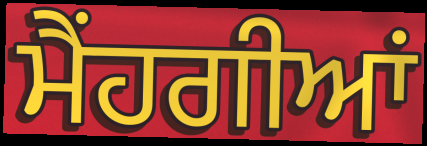
ਮੈਂਹਗੀਆਂ